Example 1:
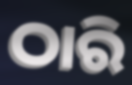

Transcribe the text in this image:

ଠାରି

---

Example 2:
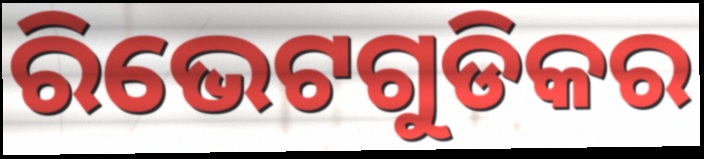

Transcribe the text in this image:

ରିଭେଟଗୁଡିକର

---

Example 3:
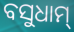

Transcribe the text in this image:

ବସୁଧାମ୍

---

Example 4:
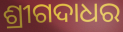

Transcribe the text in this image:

ଶ୍ରୀଗଦାଧର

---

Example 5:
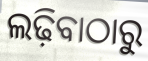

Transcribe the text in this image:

ଲଢ଼ିବାଠାରୁ